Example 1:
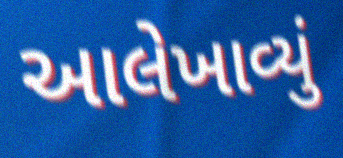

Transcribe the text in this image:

આલેખાવ્યું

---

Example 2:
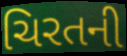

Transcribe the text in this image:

ચિરતની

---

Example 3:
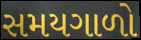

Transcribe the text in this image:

સમયગાળો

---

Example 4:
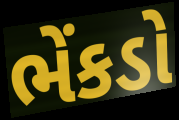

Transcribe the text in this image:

ભેંકડો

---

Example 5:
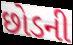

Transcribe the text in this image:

છોડની